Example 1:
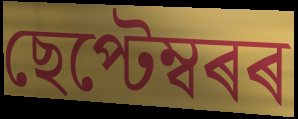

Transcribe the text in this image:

ছেপ্টেম্বৰৰ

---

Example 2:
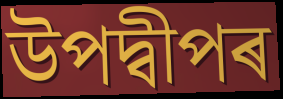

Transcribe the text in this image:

উপদ্বীপৰ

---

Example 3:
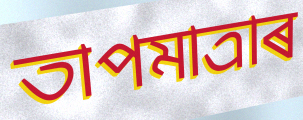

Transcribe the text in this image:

তাপমাত্ৰাৰ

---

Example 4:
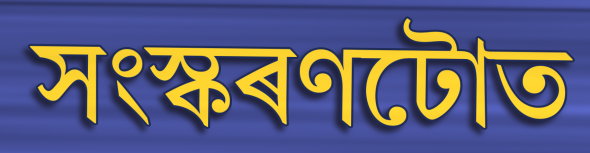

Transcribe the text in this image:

সংস্কৰণটোত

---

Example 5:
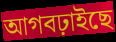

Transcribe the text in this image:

আগবঢ়াইছে